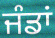
ਜੰਡਾਂ